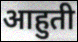
आहुती